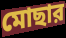
মোছার